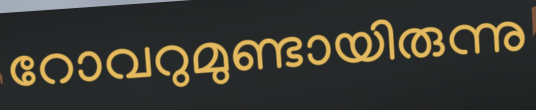
റോവറുമുണ്ടായിരുന്നു